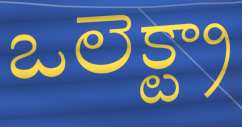
ఒలెక్ట్రా